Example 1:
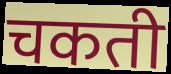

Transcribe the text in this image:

चकती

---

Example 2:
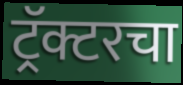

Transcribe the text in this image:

ट्रॅक्टरचा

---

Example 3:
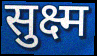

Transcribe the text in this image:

सुक्ष्म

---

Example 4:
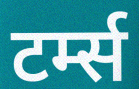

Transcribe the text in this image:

टर्म्स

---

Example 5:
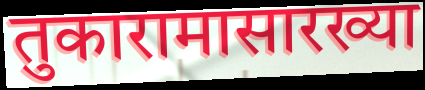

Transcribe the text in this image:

तुकारामासारख्या